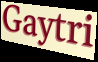
Gaytri